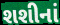
શશીનાં